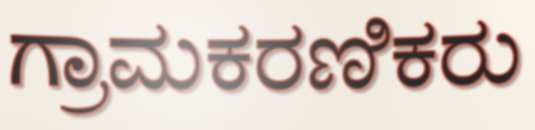
ಗ್ರಾಮಕರಣಿಕರು